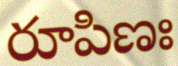
రూపిణః